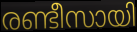
രണ്ടീസായി